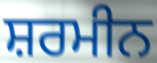
ਸ਼ਰਮੀਨ